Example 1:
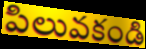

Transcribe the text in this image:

పిలువకండి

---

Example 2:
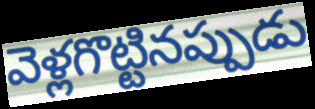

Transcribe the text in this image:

వెళ్లగొట్టినప్పుడు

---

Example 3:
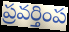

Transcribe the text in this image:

ప్రవర్తింప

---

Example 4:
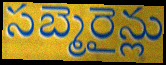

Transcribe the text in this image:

సబ్మెరైన్లు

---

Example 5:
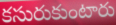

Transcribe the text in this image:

కసురుకుంటారు